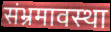
संभ्रमावस्था